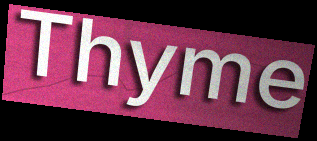
Thyme